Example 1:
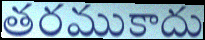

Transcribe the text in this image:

తరముకాదు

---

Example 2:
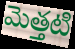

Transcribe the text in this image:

మెత్తటి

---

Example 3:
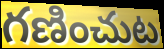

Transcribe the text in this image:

గణించుట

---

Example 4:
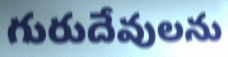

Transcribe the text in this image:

గురుదేవులను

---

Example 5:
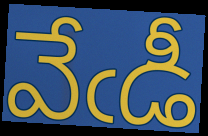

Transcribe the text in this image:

వేఁడీ